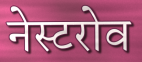
नेस्टरोव